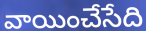
వాయించేసేది